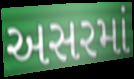
અસરમાં